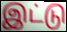
இட்டு